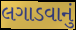
લગાડવાનું